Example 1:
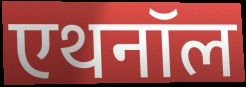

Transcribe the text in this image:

एथनॉल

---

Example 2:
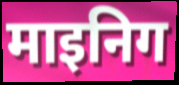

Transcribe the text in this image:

माइनिग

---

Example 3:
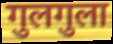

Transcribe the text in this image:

गुलगुला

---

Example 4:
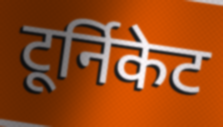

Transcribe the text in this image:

टूर्निकेट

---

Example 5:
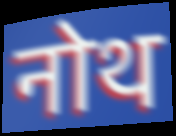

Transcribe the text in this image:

नोथ